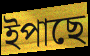
ইপাছে